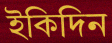
ইকিদিন